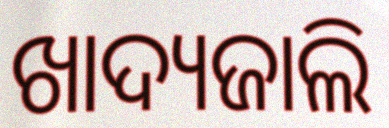
ଖାଦ୍ୟଜାଲି